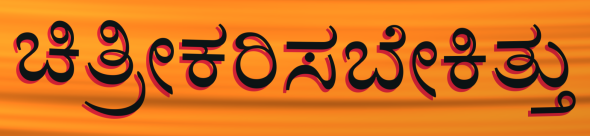
ಚಿತ್ರೀಕರಿಸಬೇಕಿತ್ತು